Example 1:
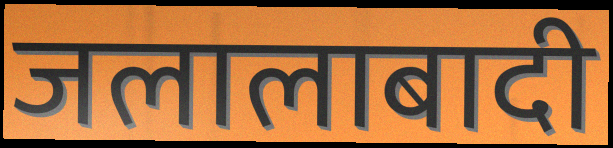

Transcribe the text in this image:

जलालाबादी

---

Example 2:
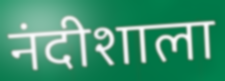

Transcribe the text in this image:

नंदीशाला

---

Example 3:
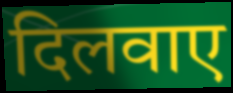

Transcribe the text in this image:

दिलवाए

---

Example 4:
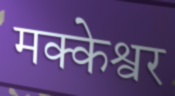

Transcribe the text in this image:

मक्केश्वर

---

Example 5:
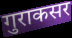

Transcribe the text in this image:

गुराकसर